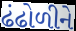
ઢંઢોળીને